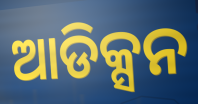
ଆଡିକ୍ସନ